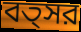
বত্সর